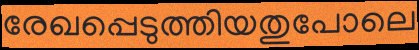
രേഖപ്പെടുത്തിയതുപോലെ